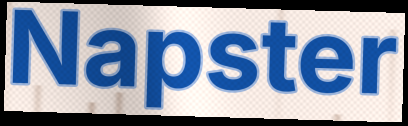
Napster